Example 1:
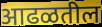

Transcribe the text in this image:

आढळतील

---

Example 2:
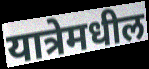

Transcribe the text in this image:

यात्रेमधील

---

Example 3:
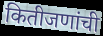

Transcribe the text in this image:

कितीजणांची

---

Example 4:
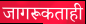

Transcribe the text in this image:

जागरूकताही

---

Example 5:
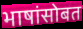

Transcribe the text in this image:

भाषांसोबत